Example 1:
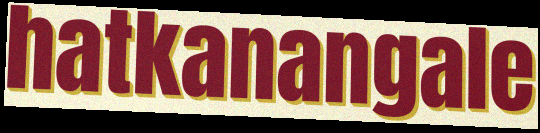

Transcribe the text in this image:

hatkanangale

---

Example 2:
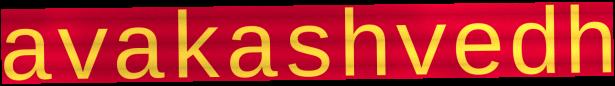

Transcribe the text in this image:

avakashvedh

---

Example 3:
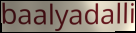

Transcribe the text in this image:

baalyadalli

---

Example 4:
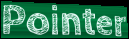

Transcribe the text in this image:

Pointer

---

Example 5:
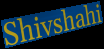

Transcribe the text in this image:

Shivshahi